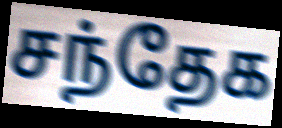
சந்தேக